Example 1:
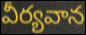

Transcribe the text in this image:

వీర్యవాన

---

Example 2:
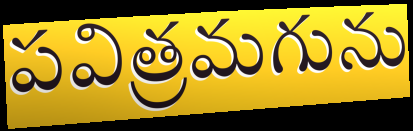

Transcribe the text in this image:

పవిత్రమగును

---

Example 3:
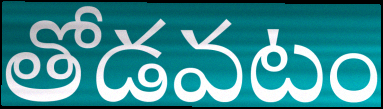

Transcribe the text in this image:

తోడవటం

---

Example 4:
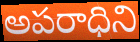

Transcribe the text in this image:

అపరాధిని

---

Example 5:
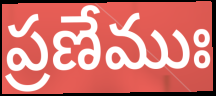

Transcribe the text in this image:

ప్రణేముః